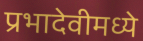
प्रभादेवीमध्ये